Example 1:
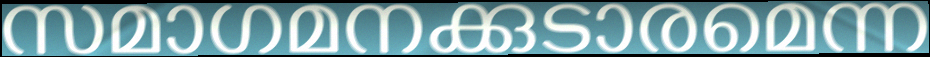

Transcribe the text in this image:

സമാഗമനക്കുടാരമെന്ന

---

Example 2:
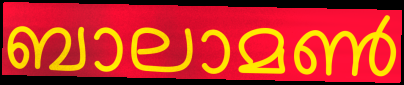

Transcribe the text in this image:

ബാലാമൺ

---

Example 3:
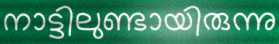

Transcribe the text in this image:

നാട്ടിലുണ്ടായിരുന്നു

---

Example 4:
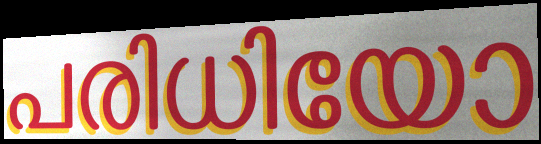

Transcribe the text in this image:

പരിധിയോ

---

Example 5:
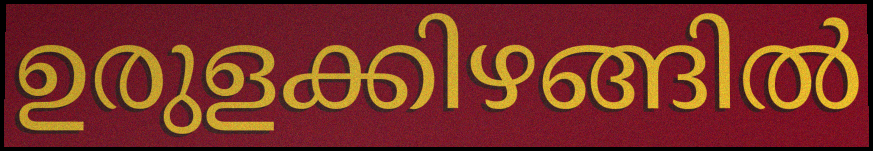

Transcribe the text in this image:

ഉരുളക്കിഴങ്ങിൽ